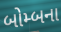
બોમ્બના